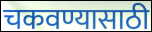
चकवण्यासाठी